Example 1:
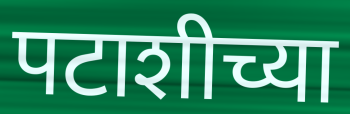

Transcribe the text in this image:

पटाशीच्या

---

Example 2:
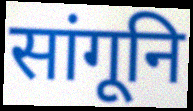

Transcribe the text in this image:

सांगूनि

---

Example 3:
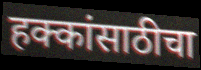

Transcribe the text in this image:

हक्कांसाठीचा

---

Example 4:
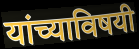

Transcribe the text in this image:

यांच्याविषयी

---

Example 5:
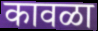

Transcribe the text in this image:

कावळा